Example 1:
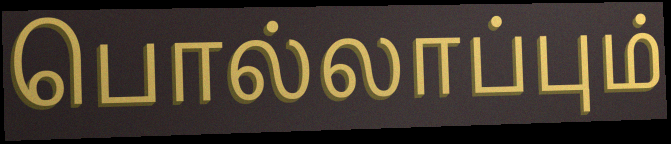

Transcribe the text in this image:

பொல்லாப்பும்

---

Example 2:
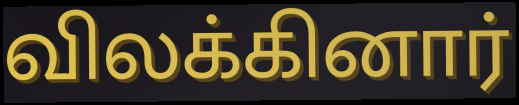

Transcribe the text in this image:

விலக்கினார்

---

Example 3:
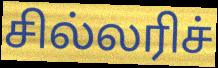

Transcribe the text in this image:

சில்லரிச்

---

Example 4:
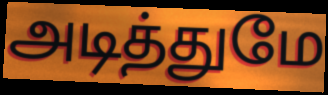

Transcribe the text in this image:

அடித்துமே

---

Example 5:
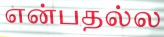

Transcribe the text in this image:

என்பதல்ல